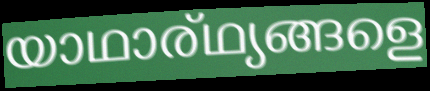
യാഥാര്ഥ്യങ്ങളെ